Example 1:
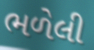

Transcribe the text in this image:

ભળેલી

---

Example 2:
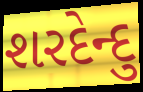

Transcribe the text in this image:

શરદેન્દુ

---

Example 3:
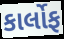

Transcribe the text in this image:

કાર્લોફ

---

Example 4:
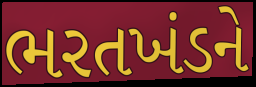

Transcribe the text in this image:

ભરતખંડને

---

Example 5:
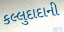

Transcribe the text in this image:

કલ્લુદાદાની